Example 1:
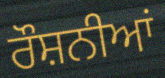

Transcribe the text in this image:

ਰੌਸ਼ਨੀਆਂ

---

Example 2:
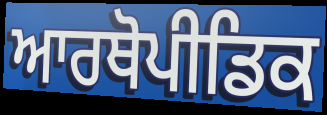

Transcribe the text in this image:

ਆਰਥੋਪੀਡਿਕ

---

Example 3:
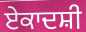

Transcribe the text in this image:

ਏਕਾਦਸ਼ੀ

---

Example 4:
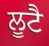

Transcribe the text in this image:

ਲੂਟੈ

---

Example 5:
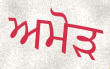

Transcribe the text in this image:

ਅਮੋੜ